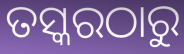
ତସ୍କରଠାରୁ